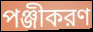
পঞ্জীকরণ